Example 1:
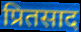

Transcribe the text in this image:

प्रितसाद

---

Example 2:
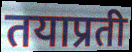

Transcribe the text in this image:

तयाप्रती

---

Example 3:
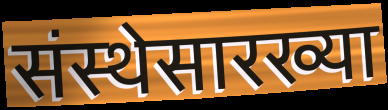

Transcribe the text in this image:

संस्थेसारख्या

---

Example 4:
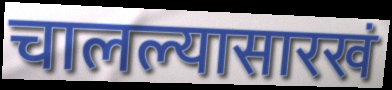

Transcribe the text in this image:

चालल्यासारखं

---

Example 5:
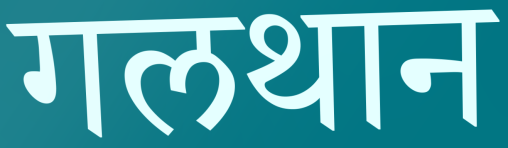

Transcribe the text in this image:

गलथान